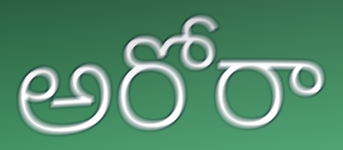
అరోరా